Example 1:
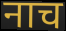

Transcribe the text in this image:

नाच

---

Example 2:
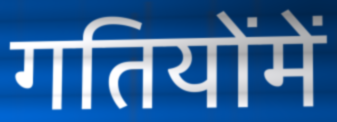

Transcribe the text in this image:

गतियोंमें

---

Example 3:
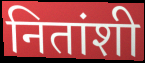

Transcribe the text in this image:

नितांशी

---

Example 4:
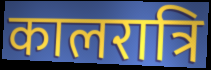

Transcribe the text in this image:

कालरात्रि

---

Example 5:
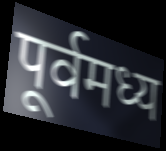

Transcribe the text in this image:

पूर्वमध्य